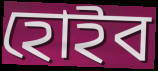
হোইব